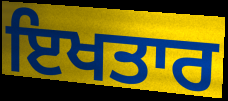
ਇਖਤਾਰ